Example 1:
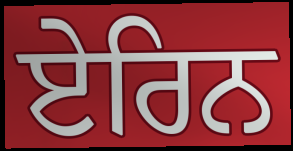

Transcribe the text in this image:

ਏਰਿਨ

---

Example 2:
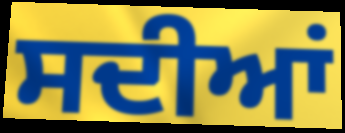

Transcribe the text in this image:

ਸਦੀਆਂ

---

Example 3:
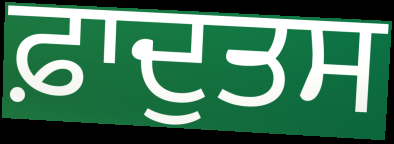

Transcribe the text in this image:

ਫ਼ਾਦੁਤਸ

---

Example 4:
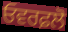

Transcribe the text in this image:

ਓਵਰਫ਼ਲੋ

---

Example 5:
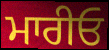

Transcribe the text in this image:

ਮਾਰੀਓ